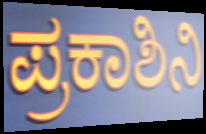
ಪ್ರಕಾಶಿನಿ